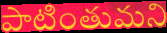
పాటింతుమని